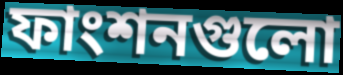
ফাংশনগুলো